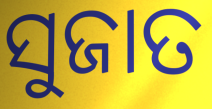
ସୁଜାତ